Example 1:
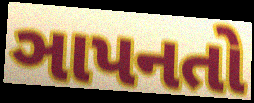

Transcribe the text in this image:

ઞાપનતો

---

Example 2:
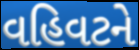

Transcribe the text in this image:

વહિવટને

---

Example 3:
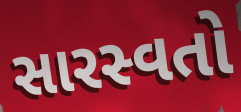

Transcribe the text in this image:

સારસ્વતો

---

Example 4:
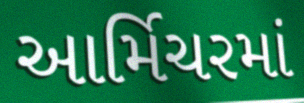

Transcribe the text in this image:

આર્મિચરમાં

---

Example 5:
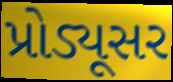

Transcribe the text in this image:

પ્રોડ્યૂસર